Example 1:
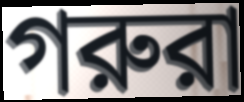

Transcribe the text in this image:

গরুরা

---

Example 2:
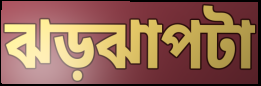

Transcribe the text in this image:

ঝড়ঝাপটা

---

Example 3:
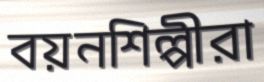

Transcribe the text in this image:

বয়নশিল্পীরা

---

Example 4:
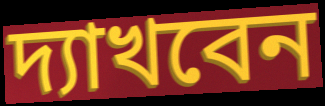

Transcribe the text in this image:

দ্যাখবেন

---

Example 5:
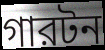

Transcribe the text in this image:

গারটন